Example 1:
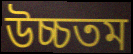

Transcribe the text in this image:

উচ্চতম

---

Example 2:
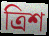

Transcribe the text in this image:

ত্রিশ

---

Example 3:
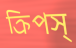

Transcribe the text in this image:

ক্রিপস্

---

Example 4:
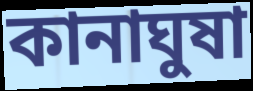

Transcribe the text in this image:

কানাঘুষা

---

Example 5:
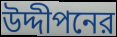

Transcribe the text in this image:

উদ্দীপনের